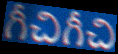
గీచిగీచి